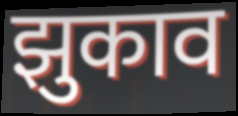
झुकाव